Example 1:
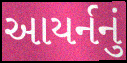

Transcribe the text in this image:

આયર્નનું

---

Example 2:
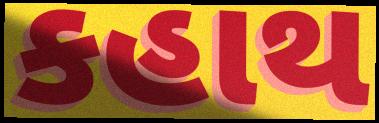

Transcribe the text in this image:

કહાથ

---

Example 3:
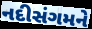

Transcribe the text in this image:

નદીસંગમને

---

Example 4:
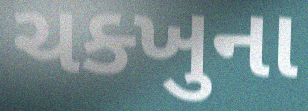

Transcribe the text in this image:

ચક્ખુના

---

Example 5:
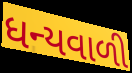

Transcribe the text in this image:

ધન્યવાળી